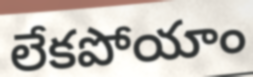
లేకపోయాం